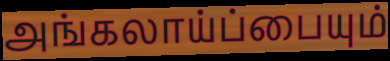
அங்கலாய்ப்பையும்